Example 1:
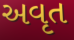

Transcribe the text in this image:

અવૃત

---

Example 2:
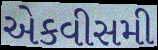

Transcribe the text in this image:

એકવીસમી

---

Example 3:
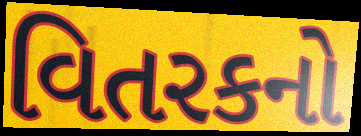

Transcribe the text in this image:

વિતરકનો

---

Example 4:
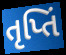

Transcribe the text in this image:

તૃપ્તિં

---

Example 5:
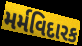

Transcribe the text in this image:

મર્મવિદારક